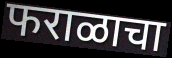
फराळाचा